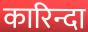
कारिन्दा